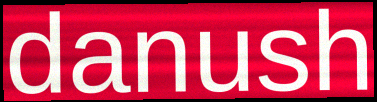
danush